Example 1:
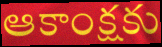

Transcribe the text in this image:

ఆకాంక్షకు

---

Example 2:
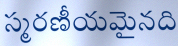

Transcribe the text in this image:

స్మరణీయమైనది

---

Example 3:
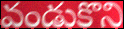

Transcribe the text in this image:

వండుకొని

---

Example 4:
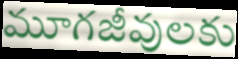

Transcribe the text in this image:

మూగజీవులకు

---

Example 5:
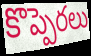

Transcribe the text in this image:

కొప్పెరలు